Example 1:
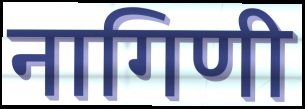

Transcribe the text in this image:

नागिणी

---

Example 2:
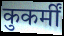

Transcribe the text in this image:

कुकर्मीं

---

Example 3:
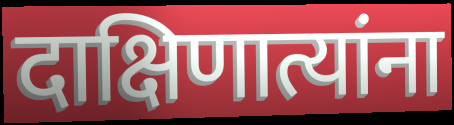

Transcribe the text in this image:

दाक्षिणात्यांना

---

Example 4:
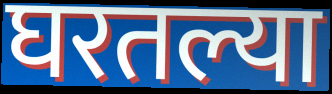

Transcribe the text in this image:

घरतल्या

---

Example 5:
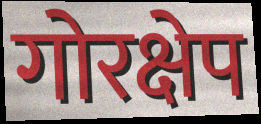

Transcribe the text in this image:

गोरक्षेप